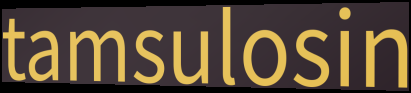
tamsulosin